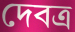
দেবত্র